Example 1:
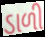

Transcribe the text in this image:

ડાળી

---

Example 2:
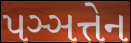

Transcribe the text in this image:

પઞ્ઞત્તેન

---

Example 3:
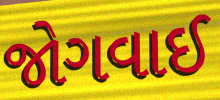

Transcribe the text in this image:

જોગવાઈ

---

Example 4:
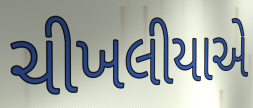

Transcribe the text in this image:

ચીખલીયાએ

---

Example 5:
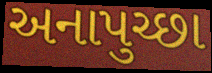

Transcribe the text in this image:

અનાપુચ્છા